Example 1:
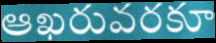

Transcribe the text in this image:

ఆఖరువరకూ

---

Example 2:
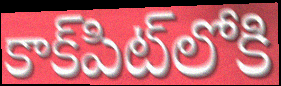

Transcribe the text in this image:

కాక్‌పిట్‌లోకి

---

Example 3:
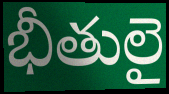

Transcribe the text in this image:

భీతులై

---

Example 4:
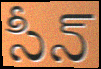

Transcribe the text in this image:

సీన్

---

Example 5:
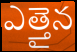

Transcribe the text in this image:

ఎత్తైన